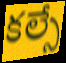
కల్సే